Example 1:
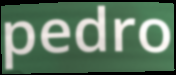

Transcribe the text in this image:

pedro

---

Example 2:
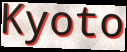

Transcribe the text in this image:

Kyoto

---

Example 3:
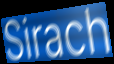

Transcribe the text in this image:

Sirach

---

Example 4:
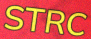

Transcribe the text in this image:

STRC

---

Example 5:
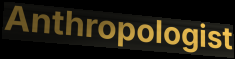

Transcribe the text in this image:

Anthropologist